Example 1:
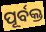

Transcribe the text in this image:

ପୂର୍ବକ୍ତ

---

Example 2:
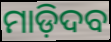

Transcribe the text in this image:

ମାଡ଼ିଦବ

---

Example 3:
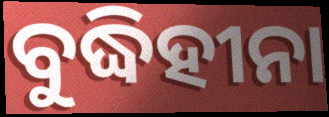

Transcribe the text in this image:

ବୁଦ୍ଧିହୀନା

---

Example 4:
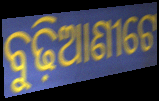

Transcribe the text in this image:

ବୁଢ଼ିଆଣୀଟେ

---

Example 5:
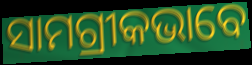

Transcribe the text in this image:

ସାମଗ୍ରୀକଭାବେ